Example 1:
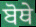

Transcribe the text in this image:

ਬੋਥੇ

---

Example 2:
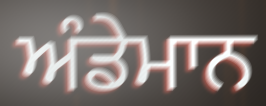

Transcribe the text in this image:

ਅੰਡੇਮਾਨ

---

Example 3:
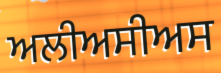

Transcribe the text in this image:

ਅਲੀਅਸੀਅਸ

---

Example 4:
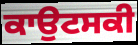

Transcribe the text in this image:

ਕਾਉਟਸਕੀ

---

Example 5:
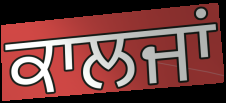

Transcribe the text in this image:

ਕਾਲਜਾਂ